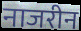
नाजरीन